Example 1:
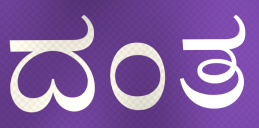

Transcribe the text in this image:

ದಂತ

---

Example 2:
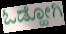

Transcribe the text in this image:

ಓಡ್ಹೋಗಿ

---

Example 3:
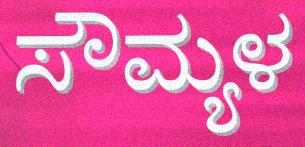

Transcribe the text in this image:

ಸೌಮ್ಯಳ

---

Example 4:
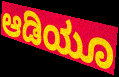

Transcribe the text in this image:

ಆಡಿಯೂ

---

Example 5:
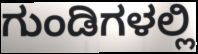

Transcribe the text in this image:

ಗುಂಡಿಗಳಲ್ಲಿ